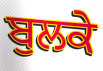
ਬੁਲਕੇ